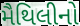
મૈથિલીનો